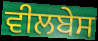
ਵੀਲਬੇਸ